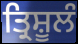
ਤ੍ਰਿਸ਼ੂਲੰ